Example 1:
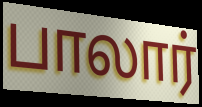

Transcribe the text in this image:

பாலார்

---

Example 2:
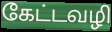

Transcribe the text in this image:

கேட்டவழி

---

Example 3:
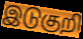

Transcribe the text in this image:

இடுகுறி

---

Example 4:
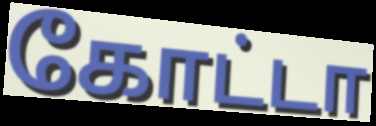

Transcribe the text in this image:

கோட்டா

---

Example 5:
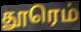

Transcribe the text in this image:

தூரெம்